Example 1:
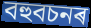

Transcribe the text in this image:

বহুবচনৰ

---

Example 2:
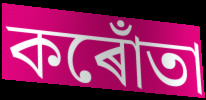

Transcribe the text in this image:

কৰোঁতা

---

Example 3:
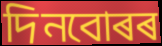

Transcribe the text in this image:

দিনবোৰৰ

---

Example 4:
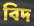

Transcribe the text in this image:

বিদ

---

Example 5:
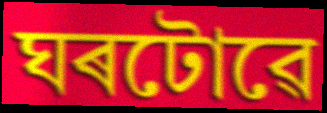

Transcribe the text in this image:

ঘৰটোৱে